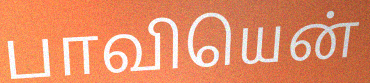
பாவியென்